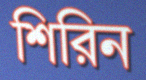
শিরিন